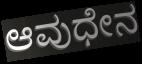
ಆವುಧೇನ